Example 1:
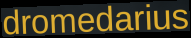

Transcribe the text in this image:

dromedarius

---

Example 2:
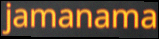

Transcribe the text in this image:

jamanama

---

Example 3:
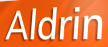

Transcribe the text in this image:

Aldrin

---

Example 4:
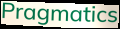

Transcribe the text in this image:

Pragmatics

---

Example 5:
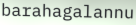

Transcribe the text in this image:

barahagalannu